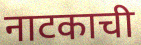
नाटकाची